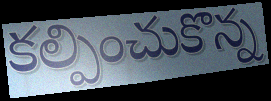
కల్పించుకొన్న